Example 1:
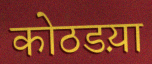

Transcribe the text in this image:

कोठडय़ा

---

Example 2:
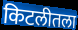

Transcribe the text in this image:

किटलीतला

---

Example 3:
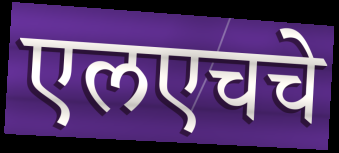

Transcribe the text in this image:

एलएचचे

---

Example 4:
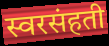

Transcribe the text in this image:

स्वरसंहती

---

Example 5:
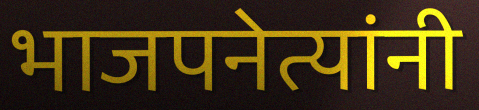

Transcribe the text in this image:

भाजपनेत्यांनी